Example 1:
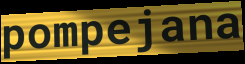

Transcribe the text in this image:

pompejana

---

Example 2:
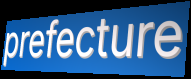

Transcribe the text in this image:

prefecture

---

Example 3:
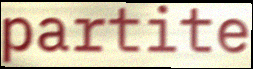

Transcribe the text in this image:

partite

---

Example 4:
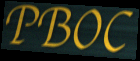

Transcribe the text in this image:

PBOC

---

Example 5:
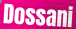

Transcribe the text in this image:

Dossani